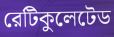
রেটিকুলেটেড